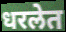
धरलेत